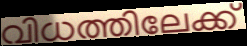
വിധത്തിലേക്ക്